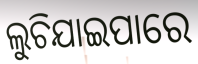
ଲୁଚିଯାଇପାରେ